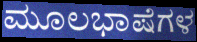
ಮೂಲಭಾಷೆಗಳ